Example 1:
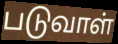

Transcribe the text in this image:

படுவாள்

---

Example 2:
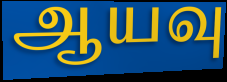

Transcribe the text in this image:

ஆயவு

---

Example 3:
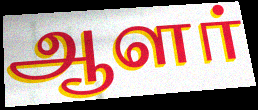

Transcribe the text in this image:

ஆளர்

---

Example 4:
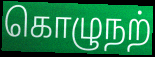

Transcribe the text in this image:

கொழுநற்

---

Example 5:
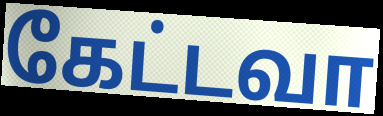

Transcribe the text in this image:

கேட்டவா